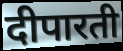
दीपारती